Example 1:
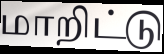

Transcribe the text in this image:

மாறிட்டு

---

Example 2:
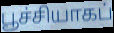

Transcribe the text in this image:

பூச்சியாகப்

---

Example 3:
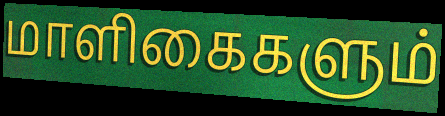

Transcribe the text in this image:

மாளிகைகளும்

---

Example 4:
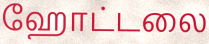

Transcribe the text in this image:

ஹோட்டலை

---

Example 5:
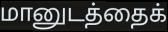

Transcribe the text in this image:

மானுடத்தைக்